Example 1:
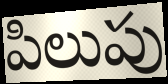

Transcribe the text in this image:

పిలుపు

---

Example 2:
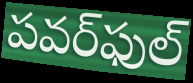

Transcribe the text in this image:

పవర్‌ఫుల్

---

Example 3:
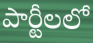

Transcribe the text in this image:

పార్టీలలో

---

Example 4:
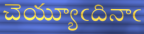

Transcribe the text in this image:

చెయ్యూఁదినాఁ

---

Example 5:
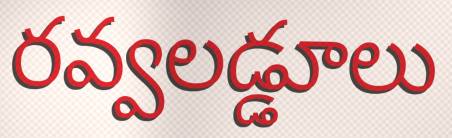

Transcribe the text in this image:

రవ్వలడ్డూలు